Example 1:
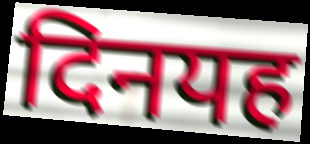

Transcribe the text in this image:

दिनयह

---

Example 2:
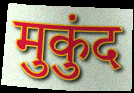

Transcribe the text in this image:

मुकुंद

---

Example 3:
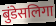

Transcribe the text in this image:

बुंडेसलिगा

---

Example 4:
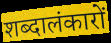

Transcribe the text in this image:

शब्दालंकारों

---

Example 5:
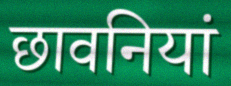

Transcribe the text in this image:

छावनियां